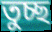
তুচ্ছ